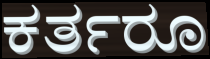
ಕರ್ತರೂ